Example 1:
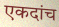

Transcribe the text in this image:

एकदांच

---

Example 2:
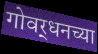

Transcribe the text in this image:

गोवर्धनच्या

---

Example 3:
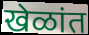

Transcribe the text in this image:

खेळांत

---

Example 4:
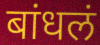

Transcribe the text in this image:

बांधलं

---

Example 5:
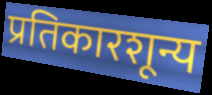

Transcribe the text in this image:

प्रतिकारशून्य